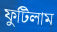
ফুটিলাম